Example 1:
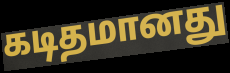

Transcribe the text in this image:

கடிதமானது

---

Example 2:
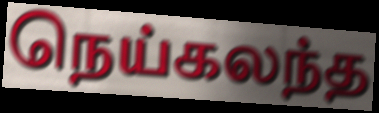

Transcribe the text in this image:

நெய்கலந்த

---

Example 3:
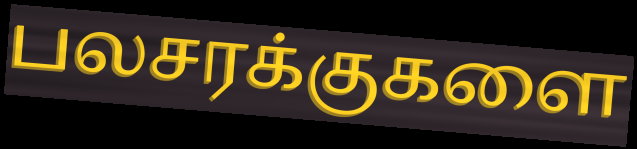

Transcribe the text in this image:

பலசரக்குகளை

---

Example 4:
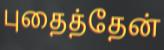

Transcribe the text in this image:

புதைத்தேன்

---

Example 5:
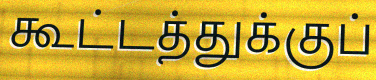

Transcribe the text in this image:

கூட்டத்துக்குப்